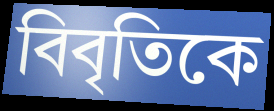
বিবৃতিকে